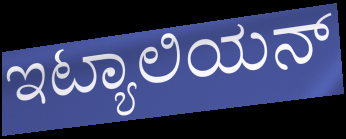
ಇಟ್ಯಾಲಿಯನ್